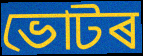
ভোটৰ